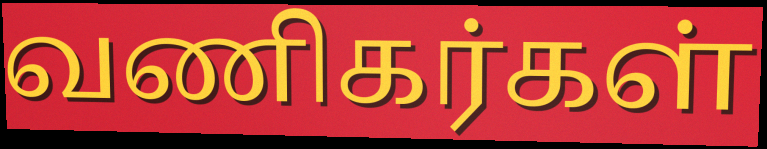
வணிகர்கள்